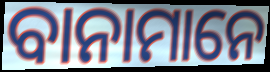
ବାନାମାନେ